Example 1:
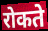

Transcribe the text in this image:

रोकते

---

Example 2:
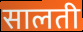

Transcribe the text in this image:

सालती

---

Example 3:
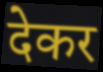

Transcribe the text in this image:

देकर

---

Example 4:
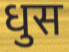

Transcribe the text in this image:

धुस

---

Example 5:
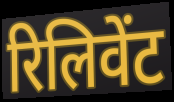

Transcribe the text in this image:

रिलिवेंट